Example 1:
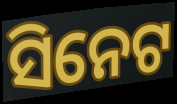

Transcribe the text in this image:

ସିନେଟ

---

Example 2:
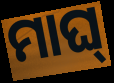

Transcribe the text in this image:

ମାଘ୍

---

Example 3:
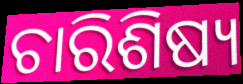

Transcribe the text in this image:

ଚାରିଶିଷ୍ୟ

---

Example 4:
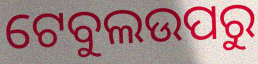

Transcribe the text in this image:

ଟେବୁଲଉପରୁ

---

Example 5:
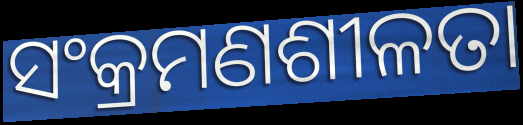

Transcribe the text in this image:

ସଂକ୍ରମଣଶୀଳତା